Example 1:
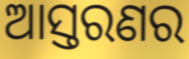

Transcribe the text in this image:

ଆସ୍ତରଣର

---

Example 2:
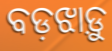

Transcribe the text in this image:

ବଡ଼ଝାଡ଼ୁ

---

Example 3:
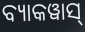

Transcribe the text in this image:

ବ୍ୟାକୱାସ୍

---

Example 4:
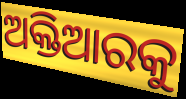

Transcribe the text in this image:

ଅକ୍ତିଆରକୁ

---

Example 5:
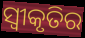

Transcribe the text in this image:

ସ୍ଵୀକୃତିର